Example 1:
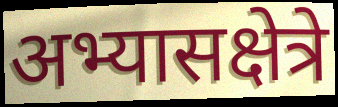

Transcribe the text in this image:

अभ्यासक्षेत्रे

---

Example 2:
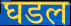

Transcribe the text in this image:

घडल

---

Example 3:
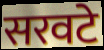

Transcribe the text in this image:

सरवटे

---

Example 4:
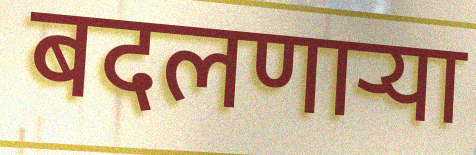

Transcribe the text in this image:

बदलणार्‍या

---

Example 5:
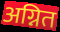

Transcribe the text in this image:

अग्नित